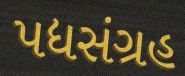
પદ્યસંગ્રહ